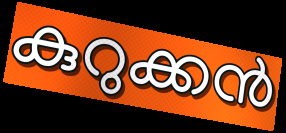
കുറുക്കൻ